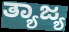
ತ್ಯಾಜ್ಯ